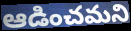
ఆడించమని